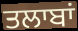
ਤਲਾਬਾਂ